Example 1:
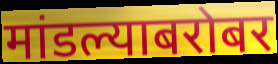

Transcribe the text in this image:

मांडल्याबरोबर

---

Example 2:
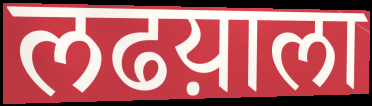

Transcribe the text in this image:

लढय़ाला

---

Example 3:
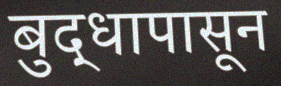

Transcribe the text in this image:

बुद्धापासून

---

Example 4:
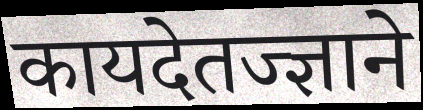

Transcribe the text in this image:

कायदेतज्ज्ञाने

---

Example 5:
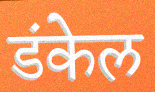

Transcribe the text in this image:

डंकेल